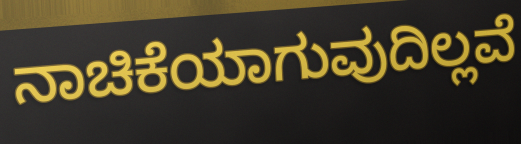
ನಾಚಿಕೆಯಾಗುವುದಿಲ್ಲವೆ